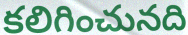
కలిగించునది